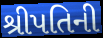
શ્રીપતિની